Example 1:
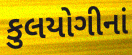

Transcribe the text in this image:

કુલયોગીનાં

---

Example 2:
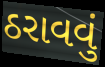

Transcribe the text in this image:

ઠરાવવું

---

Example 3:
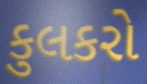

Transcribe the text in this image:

કુલકરો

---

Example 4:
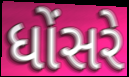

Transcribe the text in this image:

ધોંસરે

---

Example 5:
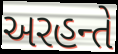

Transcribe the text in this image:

અરહન્તે